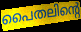
പൈതലിന്റെ